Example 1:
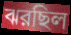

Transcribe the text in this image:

ঝরছিল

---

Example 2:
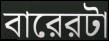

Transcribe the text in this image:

বারেরটা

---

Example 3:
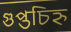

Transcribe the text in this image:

গুপ্তচিহ্ন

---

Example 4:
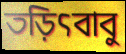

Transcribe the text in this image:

তড়িৎবাবু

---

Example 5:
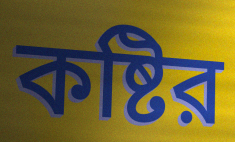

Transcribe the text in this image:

কষ্টির